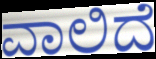
ವಾಲಿದೆ